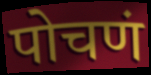
पोचणं